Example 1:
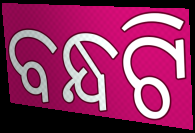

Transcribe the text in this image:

ବନ୍ଧଟି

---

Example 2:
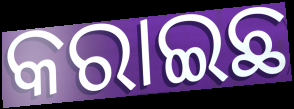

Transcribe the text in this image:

କରାଇଛ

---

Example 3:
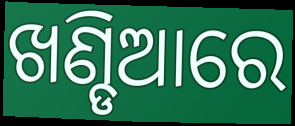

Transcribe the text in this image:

ଖଣ୍ଡିଆରେ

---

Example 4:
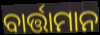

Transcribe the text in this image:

ବାର୍ତ୍ତାମାନ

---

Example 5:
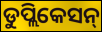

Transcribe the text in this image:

ଡୁପ୍ଲିକେସନ୍